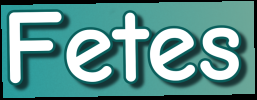
Fetes